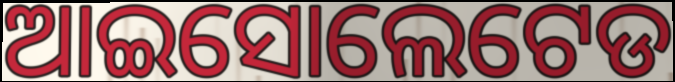
ଆଇସୋଲେଟେଡ